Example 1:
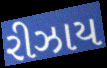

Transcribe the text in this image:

રીઝાય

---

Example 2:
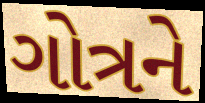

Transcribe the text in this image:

ગોત્રને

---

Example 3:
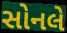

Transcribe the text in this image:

સોનલે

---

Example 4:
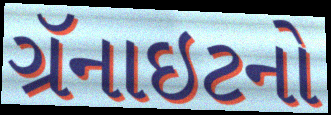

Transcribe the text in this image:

ગ્રૅનાઇટનો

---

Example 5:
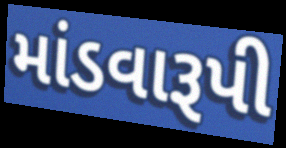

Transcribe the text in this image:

માંડવારૂપી